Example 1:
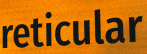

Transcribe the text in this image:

reticular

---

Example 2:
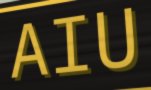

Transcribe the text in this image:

AIU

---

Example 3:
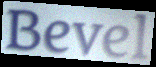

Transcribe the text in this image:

Bevel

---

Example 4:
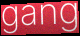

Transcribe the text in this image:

gang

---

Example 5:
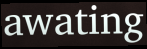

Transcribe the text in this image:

awating